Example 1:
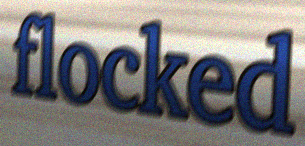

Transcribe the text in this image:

flocked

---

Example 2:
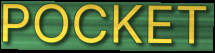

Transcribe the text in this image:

POCKET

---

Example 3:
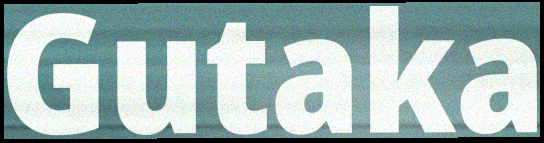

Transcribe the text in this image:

Gutaka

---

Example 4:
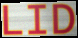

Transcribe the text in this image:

LID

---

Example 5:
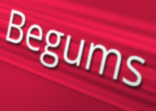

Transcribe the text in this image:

Begums